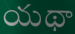
యథా